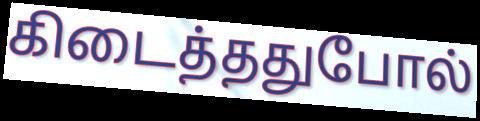
கிடைத்ததுபோல்